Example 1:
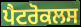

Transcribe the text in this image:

ਪੈਟਰੋਕਲਸ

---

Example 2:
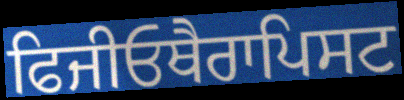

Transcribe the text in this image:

ਫਿਜੀਓਥੈਰਾਪਿਸਟ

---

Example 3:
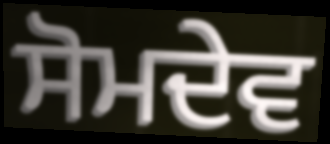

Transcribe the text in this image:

ਸੋਮਦੇਵ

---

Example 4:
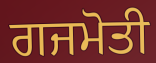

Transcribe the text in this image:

ਗਜਮੋਤੀ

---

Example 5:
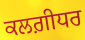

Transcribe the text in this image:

ਕਲਗ਼ੀਧਰ